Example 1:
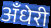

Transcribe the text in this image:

अँधेरी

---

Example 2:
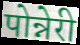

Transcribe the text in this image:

पोन्नेरी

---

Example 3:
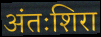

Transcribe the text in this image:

अंतःशिरा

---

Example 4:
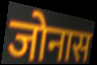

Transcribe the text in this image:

जोनास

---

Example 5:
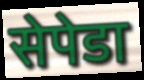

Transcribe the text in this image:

सेपेडा